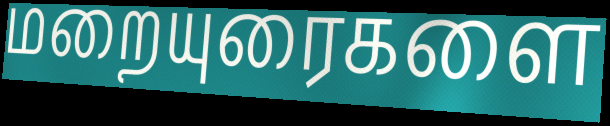
மறையுரைகளை